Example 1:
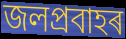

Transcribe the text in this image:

জলপ্ৰবাহৰ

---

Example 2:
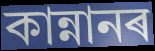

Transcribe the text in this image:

কান্নানৰ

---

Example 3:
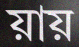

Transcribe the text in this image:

য়ায়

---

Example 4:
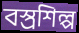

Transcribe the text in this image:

বস্ত্ৰশিল্প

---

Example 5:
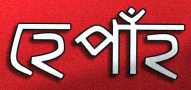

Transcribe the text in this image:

হেপাঁহ